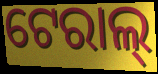
ଟେରାଲ୍